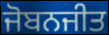
ਜੋਬਨਜੀਤ